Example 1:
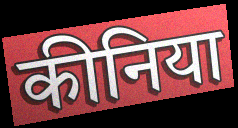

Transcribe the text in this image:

कीनिया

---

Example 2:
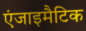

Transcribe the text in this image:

एंजाइमैटिक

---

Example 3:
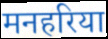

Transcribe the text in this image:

मनहरिया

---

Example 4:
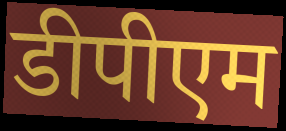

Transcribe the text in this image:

डीपीएम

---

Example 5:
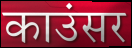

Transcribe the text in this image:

काउंसर